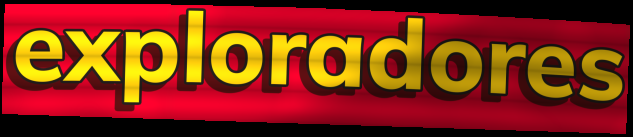
exploradores